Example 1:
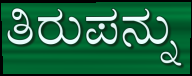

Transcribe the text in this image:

ತಿರುಪನ್ನು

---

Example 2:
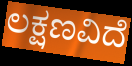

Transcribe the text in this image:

ಲಕ್ಷಣವಿದೆ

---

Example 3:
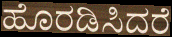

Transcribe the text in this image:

ಹೊರಡಿಸಿದರೆ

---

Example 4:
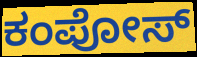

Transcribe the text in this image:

ಕಂಪೋಸ್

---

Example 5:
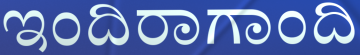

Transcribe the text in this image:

ಇಂದಿರಾಗಾಂದಿ